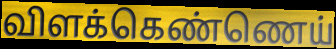
விளக்கெண்ணெய்